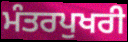
ਮੰਤਰਪੁਖਰੀ